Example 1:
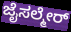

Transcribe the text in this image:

ಜೈಸಲ್ಮೇರ್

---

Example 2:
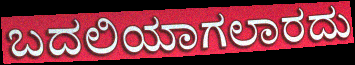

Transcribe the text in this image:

ಬದಲಿಯಾಗಲಾರದು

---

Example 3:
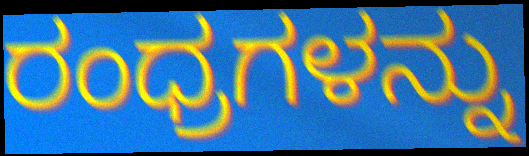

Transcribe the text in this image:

ರಂಧ್ರಗಳನ್ನು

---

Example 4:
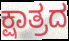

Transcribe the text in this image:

ಕ್ಷಾತ್ರದ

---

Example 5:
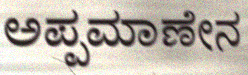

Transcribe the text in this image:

ಅಪ್ಪಮಾಣೇನ